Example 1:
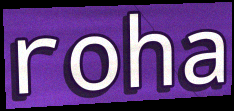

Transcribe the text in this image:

roha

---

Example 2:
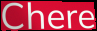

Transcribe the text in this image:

Chere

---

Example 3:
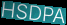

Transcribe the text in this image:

HSDPA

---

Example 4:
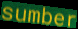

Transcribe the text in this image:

sumber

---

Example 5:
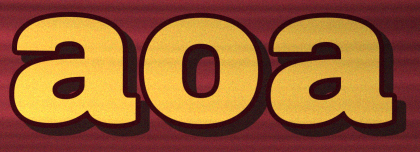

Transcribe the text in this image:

aoa